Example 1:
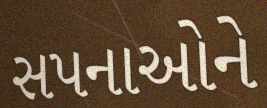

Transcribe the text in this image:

સપનાઓને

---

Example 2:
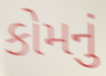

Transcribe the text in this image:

કોમનું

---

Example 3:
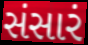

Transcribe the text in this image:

સંસારં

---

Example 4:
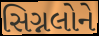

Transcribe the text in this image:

સિગ્નલોને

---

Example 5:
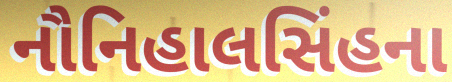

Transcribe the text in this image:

નૌનિહાલસિંહના